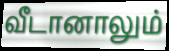
வீடானாலும்